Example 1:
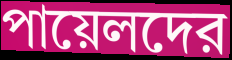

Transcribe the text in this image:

পায়েলদের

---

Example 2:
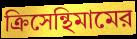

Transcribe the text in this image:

ক্রিসেন্থিমামের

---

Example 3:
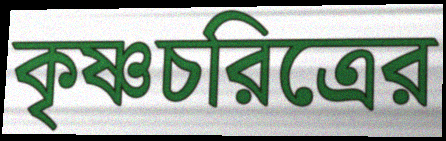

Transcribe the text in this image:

কৃষ্ণচরিত্রের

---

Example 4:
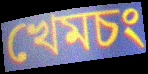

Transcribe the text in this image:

খেমচং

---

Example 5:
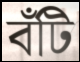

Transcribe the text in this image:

বঁটি